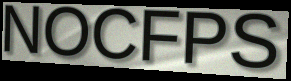
NOCFPS